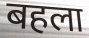
बहला